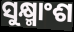
ସୁକ୍ଷ୍ମାଂଶ